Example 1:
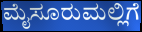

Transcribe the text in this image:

ಮೈಸೂರುಮಲ್ಲಿಗೆ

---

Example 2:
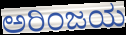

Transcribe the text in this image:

ಅರಿಂಜಯ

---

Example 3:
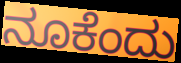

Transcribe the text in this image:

ನೂಕೆಂದು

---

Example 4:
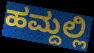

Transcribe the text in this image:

ಹಮ್ದಲ್ಲಿ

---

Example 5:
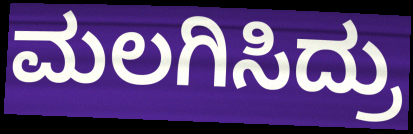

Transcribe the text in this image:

ಮಲಗಿಸಿದ್ರು